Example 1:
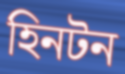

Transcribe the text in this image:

হিনটন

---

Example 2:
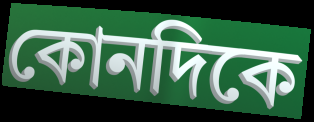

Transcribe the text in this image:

কোনদিকে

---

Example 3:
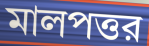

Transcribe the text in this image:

মালপত্তর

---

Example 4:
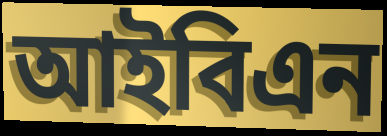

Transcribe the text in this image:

আইবিএন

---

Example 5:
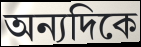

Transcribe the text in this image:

অন্যদিকে